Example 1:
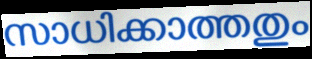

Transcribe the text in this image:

സാധിക്കാത്തതും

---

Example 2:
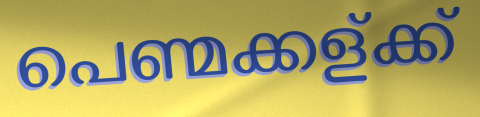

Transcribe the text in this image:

പെണ്മക്കള്ക്ക്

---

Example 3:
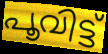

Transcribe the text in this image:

പൂവിട്ട്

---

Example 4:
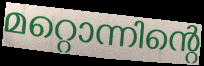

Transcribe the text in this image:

മറ്റൊന്നിന്റെ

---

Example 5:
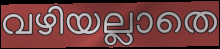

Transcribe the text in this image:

വഴിയല്ലാതെ